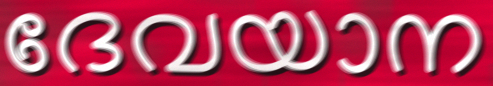
ദേവയാന